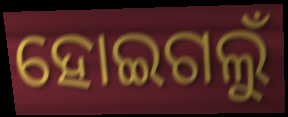
ହୋଇଗଲୁଁ